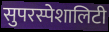
सुपरस्पेशालिटी